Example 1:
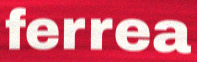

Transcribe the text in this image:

ferrea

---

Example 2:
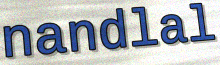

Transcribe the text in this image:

nandlal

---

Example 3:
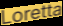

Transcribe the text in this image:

Loretta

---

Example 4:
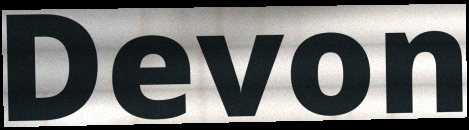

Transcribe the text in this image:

Devon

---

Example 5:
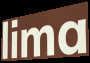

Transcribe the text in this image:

lima